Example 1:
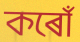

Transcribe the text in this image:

কৰোঁ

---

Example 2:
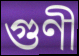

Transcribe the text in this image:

গুণী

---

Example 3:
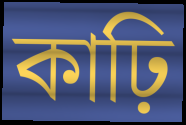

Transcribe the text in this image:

কাঢ়ি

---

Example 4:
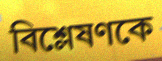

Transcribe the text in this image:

বিশ্লেষণকে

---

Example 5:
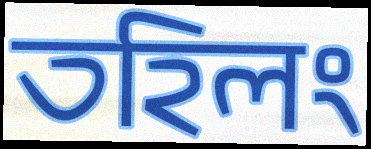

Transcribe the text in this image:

তহিলং